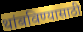
थांबविण्यासाठी